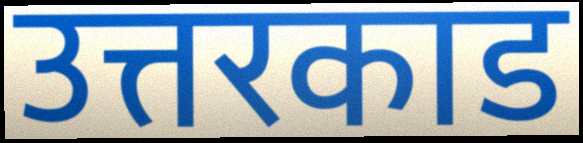
उत्तरकाड